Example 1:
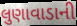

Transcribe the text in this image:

લુણાવાડાની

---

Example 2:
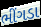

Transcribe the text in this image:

ભીંગડા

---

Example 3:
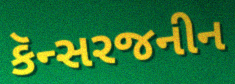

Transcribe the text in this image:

કૅન્સરજનીન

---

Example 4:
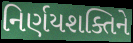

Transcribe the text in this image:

નિર્ણયશક્તિને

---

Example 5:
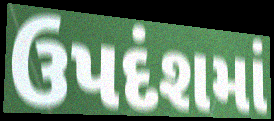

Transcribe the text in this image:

ઉપદંશમાં